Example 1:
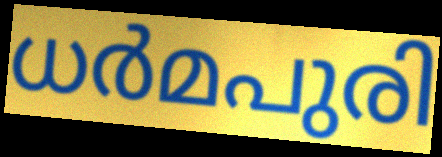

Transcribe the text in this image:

ധർമപുരി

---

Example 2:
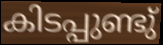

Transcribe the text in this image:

കിടപ്പുണ്ടു്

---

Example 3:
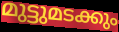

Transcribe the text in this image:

മുട്ടുമടക്കും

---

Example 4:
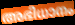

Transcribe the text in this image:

അഭിധാനം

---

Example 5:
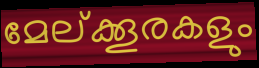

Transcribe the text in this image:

മേല്ക്കൂരകളും